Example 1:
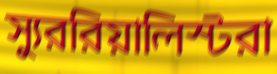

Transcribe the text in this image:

স্যুররিয়ালিস্টরা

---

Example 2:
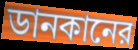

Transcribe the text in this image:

ডানকানের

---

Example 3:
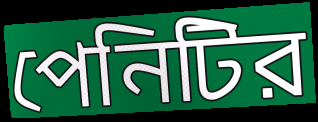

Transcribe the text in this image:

পেনিটির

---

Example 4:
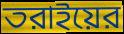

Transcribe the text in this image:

তরাইয়ের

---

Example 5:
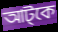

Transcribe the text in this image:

আট্‌কে